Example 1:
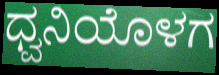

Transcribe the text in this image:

ಧ್ವನಿಯೊಳಗ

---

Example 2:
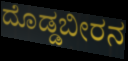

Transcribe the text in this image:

ದೊಡ್ಡಬೀರನ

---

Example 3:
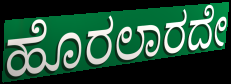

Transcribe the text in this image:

ಹೊರಲಾರದೇ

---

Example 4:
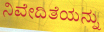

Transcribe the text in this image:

ನಿವೇದಿತೆಯನ್ನು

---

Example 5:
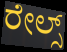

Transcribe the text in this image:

ರೇಲ್ಸ್